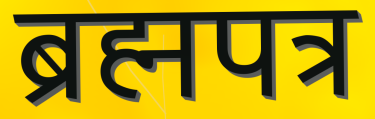
ब्रह्मपत्र